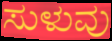
ಸುಳುವು